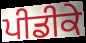
ਪੀਡੀਕੇ